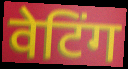
वेटिंग